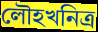
লৌহখনিত্র